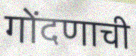
गोंदणाची